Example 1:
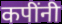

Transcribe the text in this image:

कपींनी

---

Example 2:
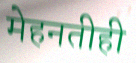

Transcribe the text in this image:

मेहनतीही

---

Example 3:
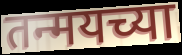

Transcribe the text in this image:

तन्मयच्या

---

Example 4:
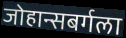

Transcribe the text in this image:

जोहान्सबर्गला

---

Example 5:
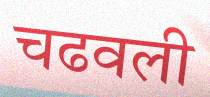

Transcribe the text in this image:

चढवली